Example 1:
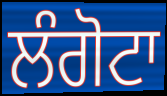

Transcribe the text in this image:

ਲੰਗੋਟਾ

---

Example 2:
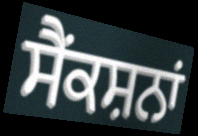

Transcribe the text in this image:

ਸੈਂਕਸ਼ਨਾਂ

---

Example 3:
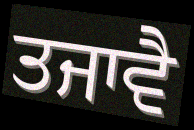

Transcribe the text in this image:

ਤਜਾਵੈ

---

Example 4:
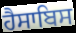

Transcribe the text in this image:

ਹੈਸਾਬਿਸ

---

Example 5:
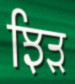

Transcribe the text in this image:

ਝਿੜ